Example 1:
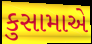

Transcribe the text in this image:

કુસામાએ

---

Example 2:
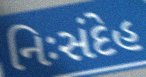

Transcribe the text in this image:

નિઃસંદેહ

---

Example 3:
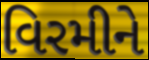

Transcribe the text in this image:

વિરમીને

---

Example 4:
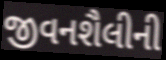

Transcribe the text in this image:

જીવનશૈલીની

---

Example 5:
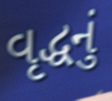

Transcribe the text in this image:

વૃદ્ધનું